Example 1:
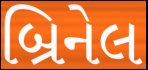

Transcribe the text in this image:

બ્રિનેલ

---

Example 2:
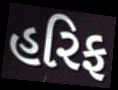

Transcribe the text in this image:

હરિફ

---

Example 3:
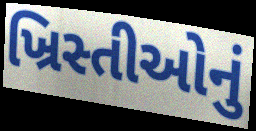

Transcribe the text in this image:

ખ્રિસ્તીઓનું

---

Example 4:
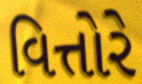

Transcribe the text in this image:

વિત્તોરે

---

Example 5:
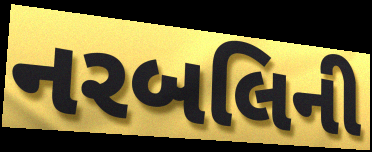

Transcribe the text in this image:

નરબલિની